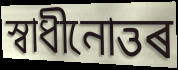
স্বাধীনোত্তৰ